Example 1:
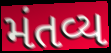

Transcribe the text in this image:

મંતવ્ય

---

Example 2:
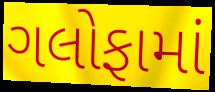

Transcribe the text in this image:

ગલોફામાં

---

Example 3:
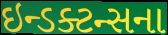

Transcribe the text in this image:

ઇન્ડક્ટન્સના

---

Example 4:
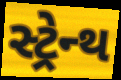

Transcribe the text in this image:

સ્ટ્રેન્થ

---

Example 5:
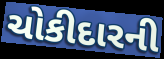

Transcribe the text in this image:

ચોકીદારની